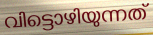
വിട്ടൊഴിയുന്നത്